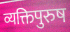
व्यक्तिपुरुष